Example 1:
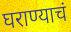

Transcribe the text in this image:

घराण्याचं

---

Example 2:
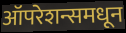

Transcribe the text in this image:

ऑपरेशन्समधून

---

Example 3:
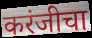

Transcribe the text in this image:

करंजीचा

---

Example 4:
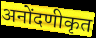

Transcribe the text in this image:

अनोंदणीकृत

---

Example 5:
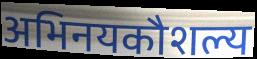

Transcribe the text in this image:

अभिनयकौशल्य